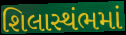
શિલાસ્થંભમાં